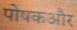
पोषकऔर